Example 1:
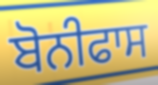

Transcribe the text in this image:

ਬੋਨੀਫਾਸ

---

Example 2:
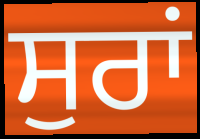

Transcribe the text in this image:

ਸੁਰਾਂ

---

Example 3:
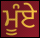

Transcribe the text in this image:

ਮੂੰਏ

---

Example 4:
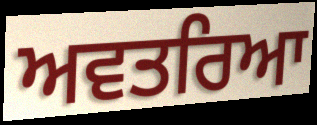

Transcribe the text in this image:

ਅਵਤਰਿਆ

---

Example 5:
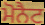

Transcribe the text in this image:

ਮੋਨੈਟ